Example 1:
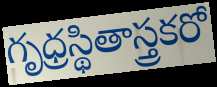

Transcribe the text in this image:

గృధ్రస్థితాస్త్రకరో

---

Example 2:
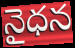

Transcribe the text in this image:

నైధన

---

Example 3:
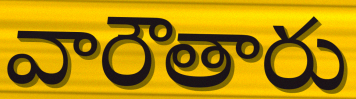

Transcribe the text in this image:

వారౌతారు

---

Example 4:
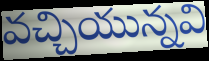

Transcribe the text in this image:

వచ్చియున్నవి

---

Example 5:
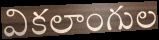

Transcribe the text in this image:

వికలాంగుల